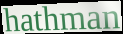
hathman